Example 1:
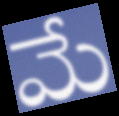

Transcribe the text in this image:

మే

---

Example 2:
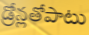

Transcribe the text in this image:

డ్రోన్లతోపాటు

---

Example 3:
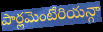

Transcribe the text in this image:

పార్లమెంటేరియన్గా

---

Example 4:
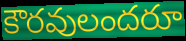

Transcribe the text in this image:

కౌరవులందరూ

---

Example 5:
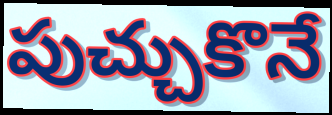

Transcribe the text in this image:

పుచ్చుకొనే